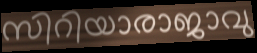
സിറിയാരാജാവു